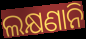
ଲକ୍ଷଣାନି